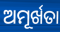
ଅମୂର୍ଖତା